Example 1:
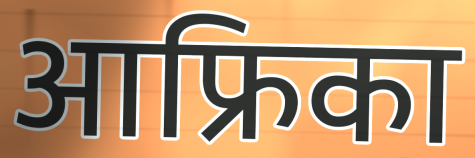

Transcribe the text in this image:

आफ्रिका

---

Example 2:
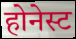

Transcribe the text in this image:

होनेस्ट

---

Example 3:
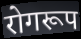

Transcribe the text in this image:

रोगरूप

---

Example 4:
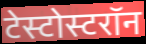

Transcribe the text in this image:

टेस्टोस्टरॉन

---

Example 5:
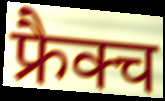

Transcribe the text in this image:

फ्रैक्च